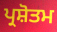
ਪ੍ਰਸ਼ੋਤਮ